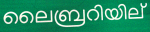
ലൈബ്രറിയില്